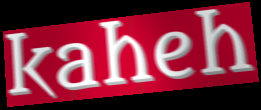
kaheh